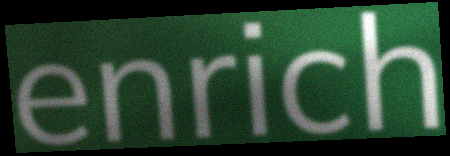
enrich